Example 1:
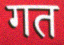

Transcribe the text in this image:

गत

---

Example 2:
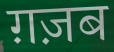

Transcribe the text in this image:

ग़ज़ब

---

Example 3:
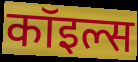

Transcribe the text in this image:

कॉइल्स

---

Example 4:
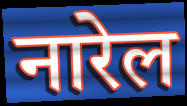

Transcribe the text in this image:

नारेल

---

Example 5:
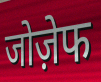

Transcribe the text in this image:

जोज़ेफ